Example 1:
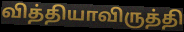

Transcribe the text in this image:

வித்தியாவிருத்தி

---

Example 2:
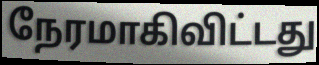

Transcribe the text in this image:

நேரமாகிவிட்டது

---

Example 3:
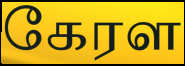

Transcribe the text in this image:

கேரள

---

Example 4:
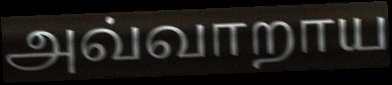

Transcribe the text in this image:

அவ்வாறாய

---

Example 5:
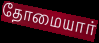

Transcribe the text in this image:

தோமையார்